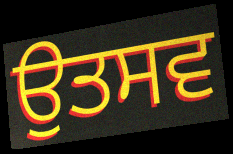
ਉਤਸਵ